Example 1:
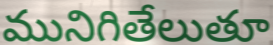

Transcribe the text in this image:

మునిగితేలుతూ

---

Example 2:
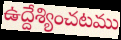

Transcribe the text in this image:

ఉద్దేశ్యించటము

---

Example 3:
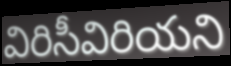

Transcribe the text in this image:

విరిసీవిరియని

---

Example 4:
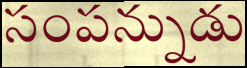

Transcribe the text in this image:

సంపన్నుడు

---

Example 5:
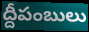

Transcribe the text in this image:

ద్దీపంబులు